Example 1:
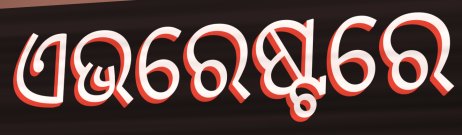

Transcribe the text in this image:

ଏଭରେଷ୍ଟରେ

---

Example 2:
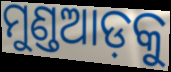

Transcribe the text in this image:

ମୁଣ୍ଡଆଡ଼କୁ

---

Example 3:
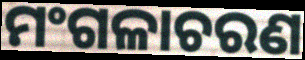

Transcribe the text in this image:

ମଂଗଳାଚରଣ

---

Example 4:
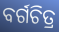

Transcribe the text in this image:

ବର୍ଗଚିତ୍ର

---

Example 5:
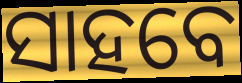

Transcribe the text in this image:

ସାହବେ